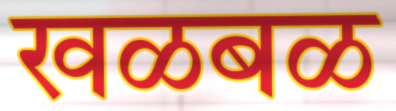
खळबळ